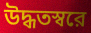
উদ্ধতস্বরে